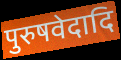
पुरुषवेदादि